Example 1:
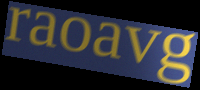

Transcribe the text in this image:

raoavg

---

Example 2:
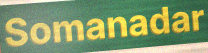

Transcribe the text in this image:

Somanadar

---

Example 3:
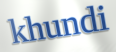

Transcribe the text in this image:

khundi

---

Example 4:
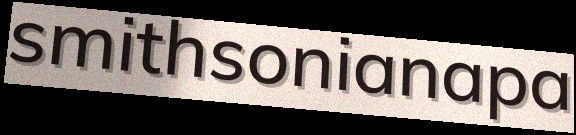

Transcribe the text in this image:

smithsonianapa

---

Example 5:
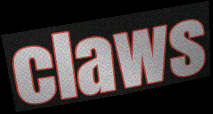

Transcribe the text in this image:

claws